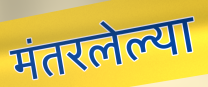
मंतरलेल्या